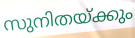
സുനിതയ്ക്കും